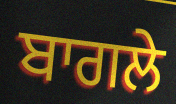
ਬਾਗਲੇ